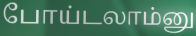
போய்டலாம்னு